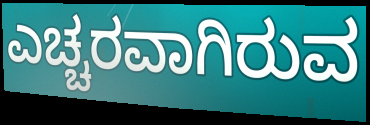
ಎಚ್ಚರವಾಗಿರುವ